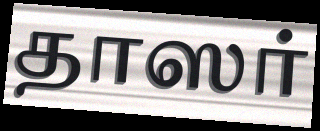
தாஸர்